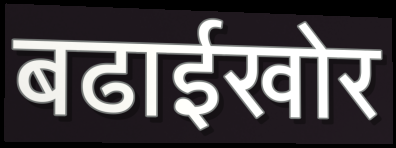
बढाईखोर